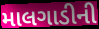
માલગાડીની